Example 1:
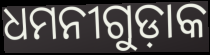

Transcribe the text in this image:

ଧମନୀଗୁଡ଼ାକ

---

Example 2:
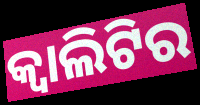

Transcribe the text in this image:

କ୍ୱାଲିଟିର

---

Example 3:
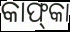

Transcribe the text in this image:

କାଫ୍‍କା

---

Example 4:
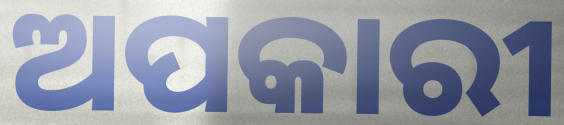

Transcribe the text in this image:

ଅପକାରୀ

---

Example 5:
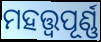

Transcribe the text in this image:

ମହତ୍ତ୍ୱପୂର୍ଣ୍ଣ